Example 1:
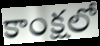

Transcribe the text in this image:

కాంక్షలో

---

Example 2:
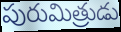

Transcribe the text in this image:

పురుమిత్రుడు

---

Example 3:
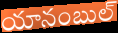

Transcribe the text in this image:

యానంబుల్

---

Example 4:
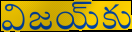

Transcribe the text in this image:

విజయ్‌కు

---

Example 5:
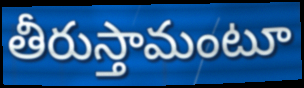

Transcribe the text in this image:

తీరుస్తామంటూ